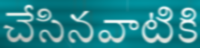
చేసినవాటికి